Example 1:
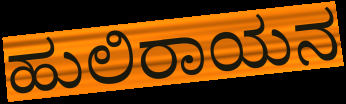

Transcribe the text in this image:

ಹುಲಿರಾಯನ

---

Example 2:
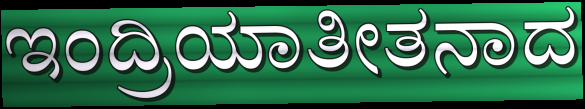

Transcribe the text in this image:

ಇಂದ್ರಿಯಾತೀತನಾದ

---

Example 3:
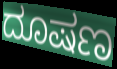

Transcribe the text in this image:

ದೂಷಣ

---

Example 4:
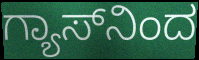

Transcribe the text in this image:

ಗ್ಯಾಸ್‌ನಿಂದ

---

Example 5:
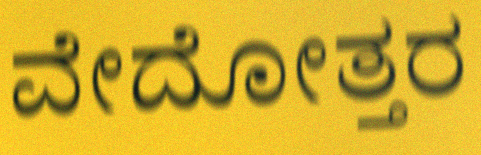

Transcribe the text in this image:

ವೇದೋತ್ತರ